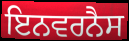
ਇਨਵਰਨੈਸ